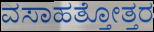
ವಸಾಹತ್ತೋತ್ತರ